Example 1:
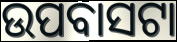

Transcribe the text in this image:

ଉପବାସଟା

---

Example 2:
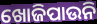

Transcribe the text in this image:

ଖୋଜିପାଉନି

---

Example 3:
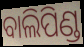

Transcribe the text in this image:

ବାଲିପିଣ୍ଡ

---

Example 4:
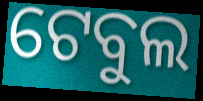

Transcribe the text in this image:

ଟେବୁଲ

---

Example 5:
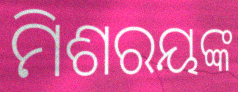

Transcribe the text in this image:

ମିଶରୟଙ୍କ